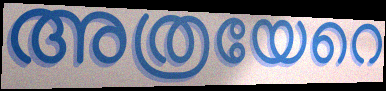
അത്രയേറെ